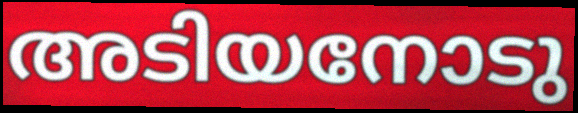
അടിയനോടു